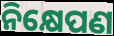
ନିକ୍ଷେପଣ